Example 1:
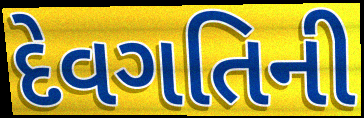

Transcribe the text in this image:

દેવગતિની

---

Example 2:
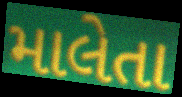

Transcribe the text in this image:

માલેતા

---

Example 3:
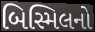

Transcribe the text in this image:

બિસ્મિલનો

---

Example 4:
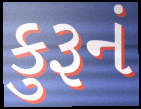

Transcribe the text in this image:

કુરૂનં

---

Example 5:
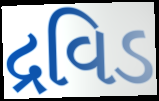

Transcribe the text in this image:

દ્રવિડ